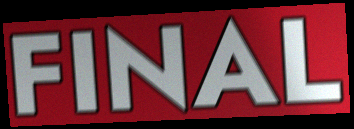
FINAL